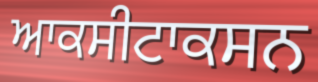
ਆਕਸੀਟਾਕਸਨ